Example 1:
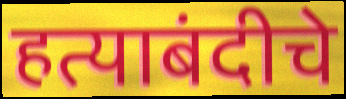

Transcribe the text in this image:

हत्याबंदीचे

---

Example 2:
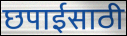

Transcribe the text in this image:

छपाईसाठी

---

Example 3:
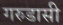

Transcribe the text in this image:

गरुडासी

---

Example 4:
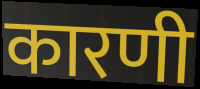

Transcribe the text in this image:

कारणी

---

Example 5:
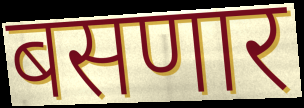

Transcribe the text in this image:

बसणार